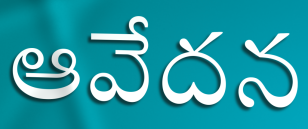
ఆవేదన